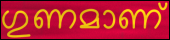
ഗുണമാണ്